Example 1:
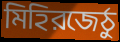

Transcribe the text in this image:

মিহিরজেঠু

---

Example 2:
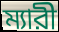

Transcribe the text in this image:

ম্যারী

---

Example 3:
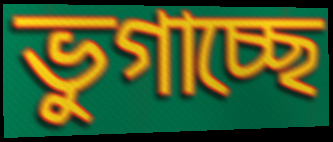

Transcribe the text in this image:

ভুগাচ্ছে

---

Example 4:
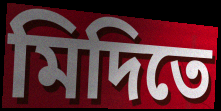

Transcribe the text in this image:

মিদিতে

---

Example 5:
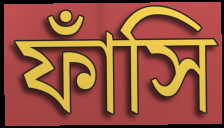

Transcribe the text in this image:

ফাঁসি